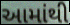
આમાંથી